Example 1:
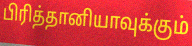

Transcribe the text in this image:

பிரித்தானியாவுக்கும்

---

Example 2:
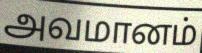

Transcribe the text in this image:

அவமானம்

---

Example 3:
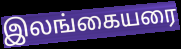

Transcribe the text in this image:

இலங்கையரை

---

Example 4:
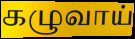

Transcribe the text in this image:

கழுவாய்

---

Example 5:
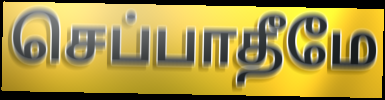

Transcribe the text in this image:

செப்பாதீமே